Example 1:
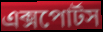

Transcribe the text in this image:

এক্সপোর্টস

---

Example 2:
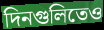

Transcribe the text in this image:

দিনগুলিতেও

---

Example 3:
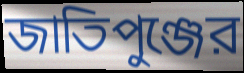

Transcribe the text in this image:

জাতিপুঞ্জের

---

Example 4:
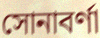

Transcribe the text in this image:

সোনাবর্ণা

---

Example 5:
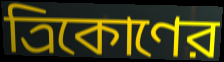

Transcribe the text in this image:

ত্রিকোণের